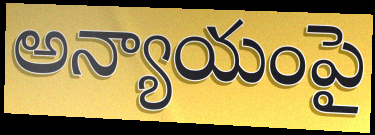
అన్యాయంపై